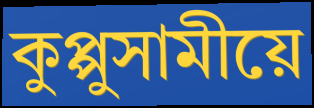
কুপ্পুসামীয়ে